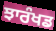
ਝਾਰੰਖਡ